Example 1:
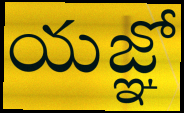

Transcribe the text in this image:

యజ్ఞో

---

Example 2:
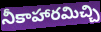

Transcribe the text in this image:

నీకాహారమిచ్చి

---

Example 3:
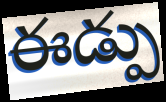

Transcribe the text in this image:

ఈడ్పు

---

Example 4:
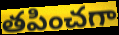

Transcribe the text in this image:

తపించగా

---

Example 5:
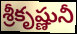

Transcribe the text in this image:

శ్రీకృష్ణునీ